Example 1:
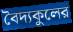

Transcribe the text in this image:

বৈদ্যকুলের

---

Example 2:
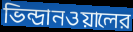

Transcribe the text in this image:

ভিন্দ্রানওয়ালের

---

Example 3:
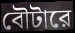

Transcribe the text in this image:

বৌটারে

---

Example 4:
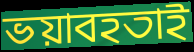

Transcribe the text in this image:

ভয়াবহতাই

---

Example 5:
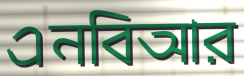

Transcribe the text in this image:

এনবিআর